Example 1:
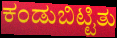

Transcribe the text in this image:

ಕಂಡುಬಿಟ್ಟಿತು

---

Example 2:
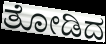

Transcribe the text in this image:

ತೋಡಿದ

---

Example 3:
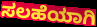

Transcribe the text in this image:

ಸಲಹೆಯಾಗಿ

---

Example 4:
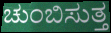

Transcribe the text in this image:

ಚುಂಬಿಸುತ್ತ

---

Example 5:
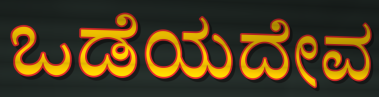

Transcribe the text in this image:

ಒಡೆಯದೇವ